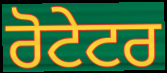
ਰੋਟੇਟਰ